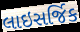
લાઇસર્જિક